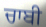
ਚਾਬੀ